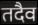
तदैव